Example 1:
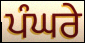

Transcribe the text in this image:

ਪੰਘਰੇ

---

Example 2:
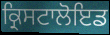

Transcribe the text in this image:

ਕ੍ਰਿਸਟਾਲੋਇਡ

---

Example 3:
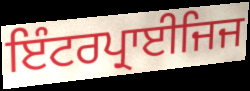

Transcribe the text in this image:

ਇੰਟਰਪ੍ਰਾਈਜਿਜ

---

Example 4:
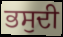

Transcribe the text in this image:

ਭਸੁਦੀ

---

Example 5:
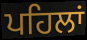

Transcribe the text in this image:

ਪਹਿਲਾਂ